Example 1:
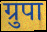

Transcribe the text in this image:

ग्रुपा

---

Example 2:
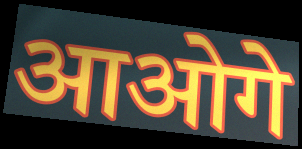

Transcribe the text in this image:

आओगे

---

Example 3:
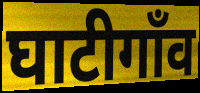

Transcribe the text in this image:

घाटीगाँव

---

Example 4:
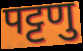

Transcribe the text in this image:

पट्टणु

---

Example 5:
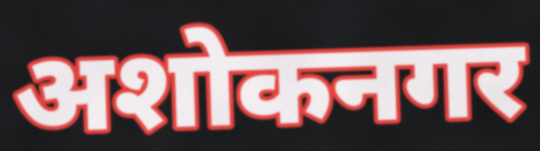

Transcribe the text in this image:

अशोकनगर